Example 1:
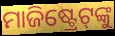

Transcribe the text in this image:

ମାଜିଷ୍ଟ୍ରେଟ୍‌ଙ୍କୁ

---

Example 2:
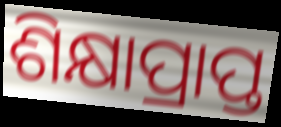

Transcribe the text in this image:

ଶିକ୍ଷାପ୍ରାପ୍ତ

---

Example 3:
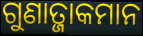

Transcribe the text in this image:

ଗୁଣାତ୍ଜାକମାନ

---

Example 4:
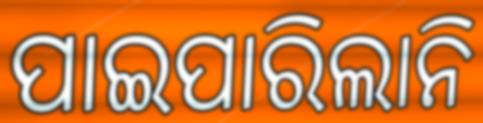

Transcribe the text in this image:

ପାଇପାରିଲାନି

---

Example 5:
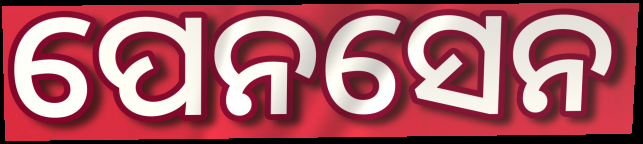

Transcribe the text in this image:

ପେନସେନ